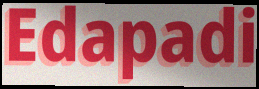
Edapadi